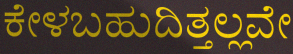
ಕೇಳಬಹುದಿತ್ತಲ್ಲವೇ